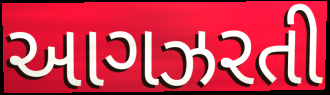
આગઝરતી